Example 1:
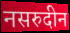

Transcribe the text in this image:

नसरुदीन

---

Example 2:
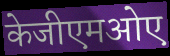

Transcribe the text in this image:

केजीएमओए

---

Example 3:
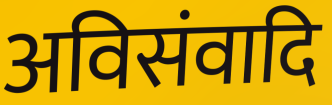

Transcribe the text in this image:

अविसंवादि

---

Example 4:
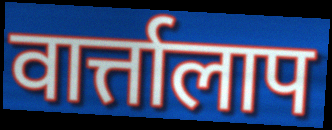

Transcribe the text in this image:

वार्त्तालाप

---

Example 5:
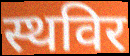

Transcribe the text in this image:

स्थविर